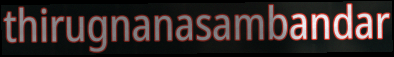
thirugnanasambandar